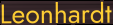
Leonhardt